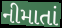
નીમાતાં